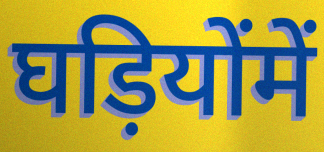
घड़ियोंमें